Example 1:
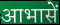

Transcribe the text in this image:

आभासें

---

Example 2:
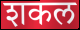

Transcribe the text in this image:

शकल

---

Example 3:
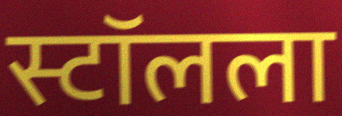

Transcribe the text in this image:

स्टॉलला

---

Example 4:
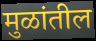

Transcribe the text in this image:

मुळांतील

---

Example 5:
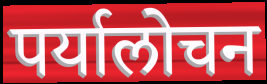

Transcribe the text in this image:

पर्यालोचन